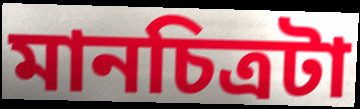
মানচিত্রটা